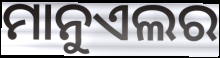
ମାନୁଏଲର